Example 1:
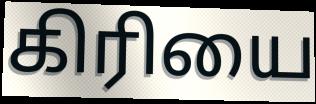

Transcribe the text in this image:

கிரியை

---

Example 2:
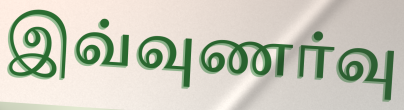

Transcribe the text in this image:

இவ்வுணர்வு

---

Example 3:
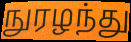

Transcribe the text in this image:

நுரழந்து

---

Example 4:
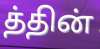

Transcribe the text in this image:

த்தின்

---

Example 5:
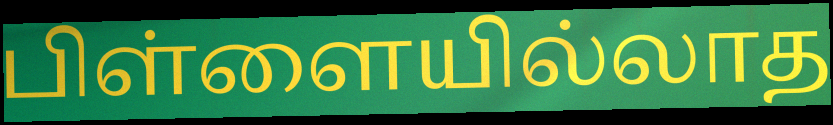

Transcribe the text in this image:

பிள்ளையில்லாத